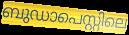
ബുഡാപെസ്റ്റിലെ